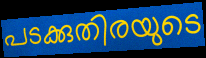
പടക്കുതിരയുടെ